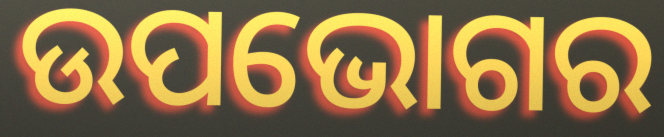
ଉପଭୋଗର